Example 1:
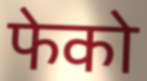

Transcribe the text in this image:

फेको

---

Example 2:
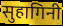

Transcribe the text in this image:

सुहागिनी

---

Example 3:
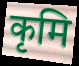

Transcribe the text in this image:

कृमि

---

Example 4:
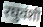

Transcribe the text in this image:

रघुवंशी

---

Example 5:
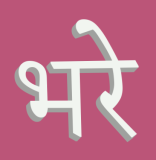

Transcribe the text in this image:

भरे